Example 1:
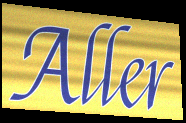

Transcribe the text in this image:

Aller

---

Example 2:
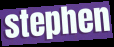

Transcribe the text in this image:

stephen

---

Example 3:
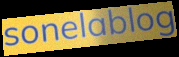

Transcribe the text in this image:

sonelablog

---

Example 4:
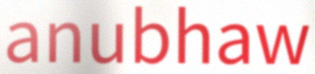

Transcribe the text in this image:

anubhaw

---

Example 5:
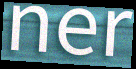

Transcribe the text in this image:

ner